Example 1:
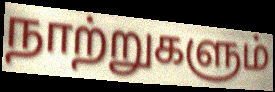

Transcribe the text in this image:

நாற்றுகளும்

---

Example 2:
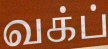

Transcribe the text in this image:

வக்ப்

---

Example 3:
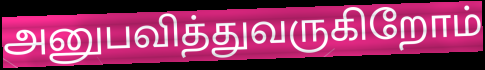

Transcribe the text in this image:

அனுபவித்துவருகிறோம்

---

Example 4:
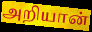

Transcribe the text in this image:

அறியான்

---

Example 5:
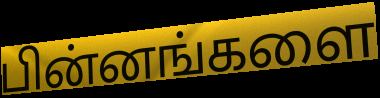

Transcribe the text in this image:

பின்னங்களை